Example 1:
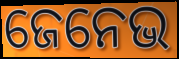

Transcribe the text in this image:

ଜେନେଭ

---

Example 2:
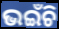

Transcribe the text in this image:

ଭଇଁଚି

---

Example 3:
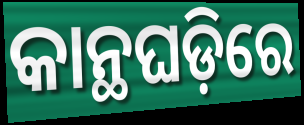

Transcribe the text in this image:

କାନ୍ଥଘଡ଼ିରେ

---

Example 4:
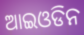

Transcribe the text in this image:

ଆଇଓଡିନ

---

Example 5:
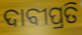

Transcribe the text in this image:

ଦାବୀପ୍ରତି